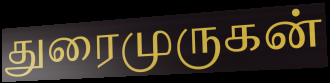
துரைமுருகன்